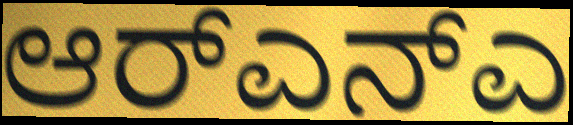
ಆರ್‌ಎನ್ಎ